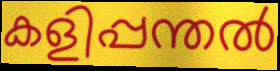
കളിപ്പന്തൽ